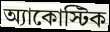
অ্যাকোস্টিক